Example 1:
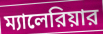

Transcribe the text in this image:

ম্যালেরিয়ার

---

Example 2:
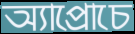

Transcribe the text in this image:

অ্যাপ্রোচে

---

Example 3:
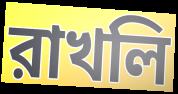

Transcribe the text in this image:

রাখলি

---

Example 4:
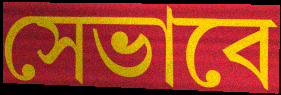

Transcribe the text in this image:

সেভাবে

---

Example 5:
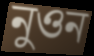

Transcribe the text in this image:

নুওন